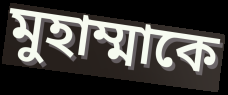
মুহাম্মাকে